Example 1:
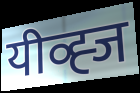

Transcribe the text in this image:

यीव्ह्ज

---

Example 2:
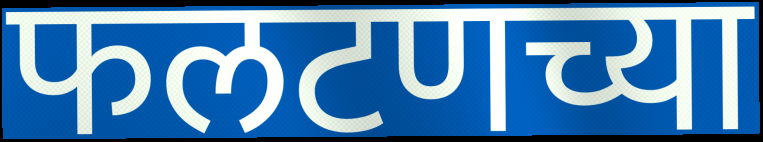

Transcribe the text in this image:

फलटणच्या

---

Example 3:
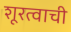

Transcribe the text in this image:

शूरत्वाची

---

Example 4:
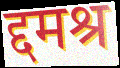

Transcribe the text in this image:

द्दमश्र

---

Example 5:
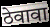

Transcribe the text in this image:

ठेवावा